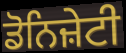
ਡੋਨਿਜ਼ੇਟੀ